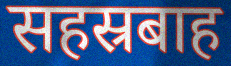
सहस्रबाह